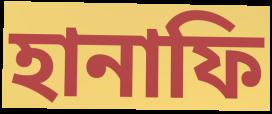
হানাফি